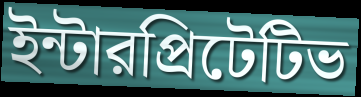
ইন্টারপ্রিটেটিভ